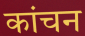
कांचन